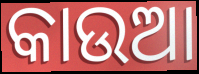
କାଉଆ